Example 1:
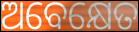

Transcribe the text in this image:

ଅବେକ୍ଷେତ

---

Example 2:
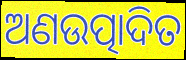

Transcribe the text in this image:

ଅଣଉତ୍ପାଦିତ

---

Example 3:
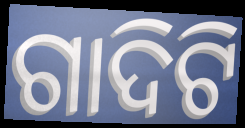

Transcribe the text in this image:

ଗାଦିଟି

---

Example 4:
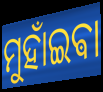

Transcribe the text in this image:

ମୁହାଁଇଵା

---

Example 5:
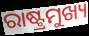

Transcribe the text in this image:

ରାଷ୍ଟ୍ରମୁଖ୍ୟ